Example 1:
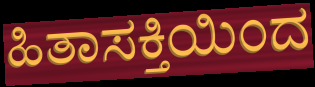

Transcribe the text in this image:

ಹಿತಾಸಕ್ತಿಯಿಂದ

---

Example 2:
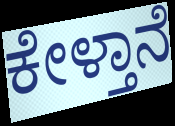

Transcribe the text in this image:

ಕೇಳ್ತಾನೆ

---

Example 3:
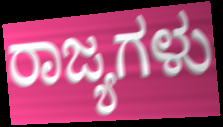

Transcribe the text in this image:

ರಾಜ್ಯಗಳು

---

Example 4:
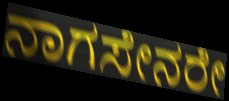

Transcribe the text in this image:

ನಾಗಸೇನರೇ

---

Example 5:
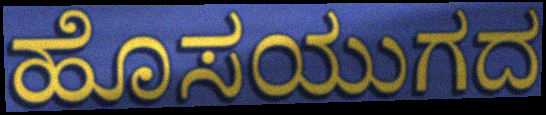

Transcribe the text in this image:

ಹೊಸಯುಗದ